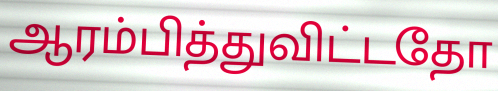
ஆரம்பித்துவிட்டதோ